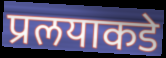
प्रलयाकडे